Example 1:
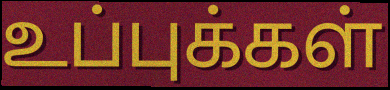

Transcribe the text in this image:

உப்புக்கள்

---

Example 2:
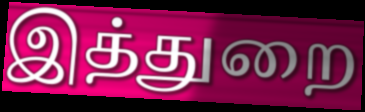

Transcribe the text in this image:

இத்துறை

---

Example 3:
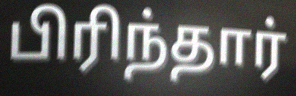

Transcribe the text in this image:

பிரிந்தார்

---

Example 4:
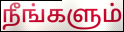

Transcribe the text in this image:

நீங்களும்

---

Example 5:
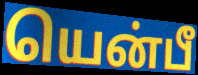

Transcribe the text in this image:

யென்பீ